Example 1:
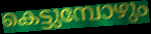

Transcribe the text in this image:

കെട്ടുമ്പോഴും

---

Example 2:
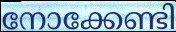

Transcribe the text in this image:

നോക്കേണ്ടി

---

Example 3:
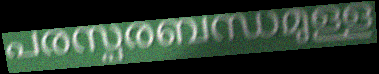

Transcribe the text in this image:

പരസ്പരബന്ധമുള്ള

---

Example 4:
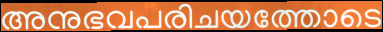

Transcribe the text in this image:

അനുഭവപരിചയത്തോടെ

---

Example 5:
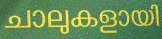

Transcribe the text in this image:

ചാലുകളായി